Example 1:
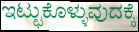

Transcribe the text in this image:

ಇಟ್ಟುಕೊಳ್ಳುವುದಕ್ಕೆ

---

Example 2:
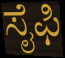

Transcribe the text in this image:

ಸೈಫಿ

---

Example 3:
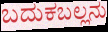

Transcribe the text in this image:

ಬದುಕಬಲ್ಲನು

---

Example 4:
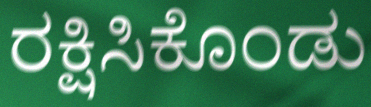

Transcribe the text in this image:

ರಕ್ಷಿಸಿಕೊಂಡು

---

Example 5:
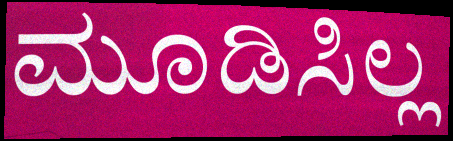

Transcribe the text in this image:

ಮೂಡಿಸಿಲ್ಲ